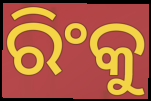
ରିଂକୁ